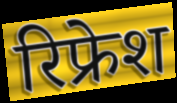
रिफ्रेश